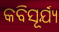
କବିସୂର୍ଯ୍ଯ